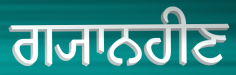
ਗ੍ਯਾਨਹੀਣ